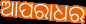
ଆପରାଧର